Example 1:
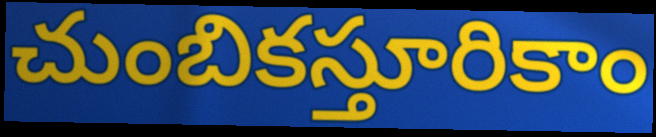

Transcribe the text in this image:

చుంబికస్తూరికాం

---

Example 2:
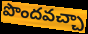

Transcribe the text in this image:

పొందవచ్చా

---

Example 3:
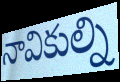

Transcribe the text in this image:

నావికుల్ని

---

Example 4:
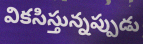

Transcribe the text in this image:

వికసిస్తున్నప్పుడు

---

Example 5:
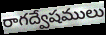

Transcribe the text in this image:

రాగద్వేషములు